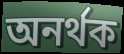
অনৰ্থক